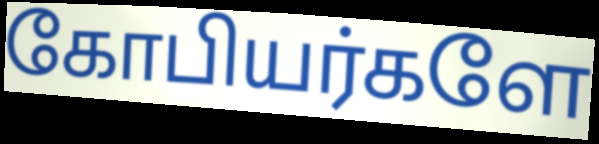
கோபியர்களே